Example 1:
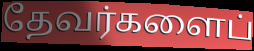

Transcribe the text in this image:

தேவர்களைப்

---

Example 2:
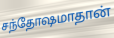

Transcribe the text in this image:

சந்தோஷமாதான்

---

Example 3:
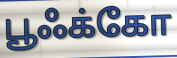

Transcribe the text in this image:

பூஃக்கோ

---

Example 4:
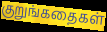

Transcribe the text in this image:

குறுங்கதைகள்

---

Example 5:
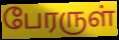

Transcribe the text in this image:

பேரருள்